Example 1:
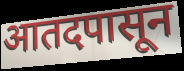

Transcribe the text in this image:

आतदपासून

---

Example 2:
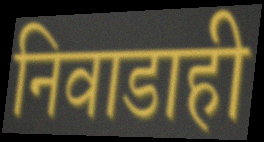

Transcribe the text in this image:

निवाडाही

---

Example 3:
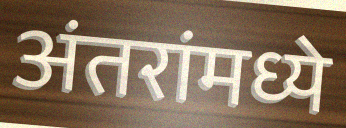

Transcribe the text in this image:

अंतरांमध्ये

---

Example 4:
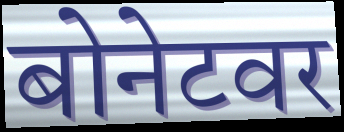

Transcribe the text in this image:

बोनेटवर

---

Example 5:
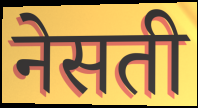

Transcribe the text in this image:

नेसती